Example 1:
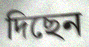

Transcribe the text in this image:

দিছেন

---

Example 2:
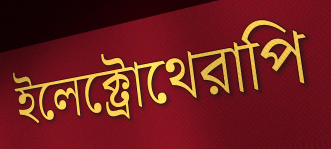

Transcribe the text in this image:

ইলেক্ট্রোথেরাপি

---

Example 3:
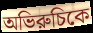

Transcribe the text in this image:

অভিরুচিকে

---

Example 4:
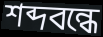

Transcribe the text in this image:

শব্দবন্ধে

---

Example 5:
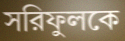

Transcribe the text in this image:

সরিফুলকে